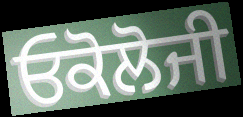
ਓਕੋਲੋਜੀ